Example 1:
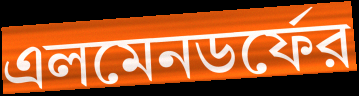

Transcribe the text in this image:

এলমেনডর্ফের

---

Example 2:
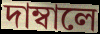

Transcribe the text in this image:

দাম্বালে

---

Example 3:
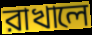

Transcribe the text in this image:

রাখালে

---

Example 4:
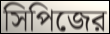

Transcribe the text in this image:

সিপিজের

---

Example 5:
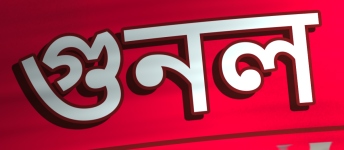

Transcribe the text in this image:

গুনল